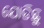
ଯୋଡିଛୁ